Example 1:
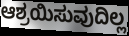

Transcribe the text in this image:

ಆಶ್ರಯಿಸುವುದಿಲ್ಲ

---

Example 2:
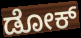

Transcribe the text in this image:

ಡೋಕ್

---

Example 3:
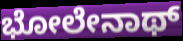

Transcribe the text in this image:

ಭೋಲೇನಾಥ್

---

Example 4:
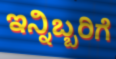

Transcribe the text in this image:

ಇನ್ನಿಬ್ಬರಿಗೆ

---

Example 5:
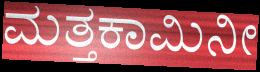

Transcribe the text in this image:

ಮತ್ತಕಾಮಿನೀ